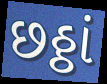
છઠ્ઠાં